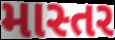
માસ્તર